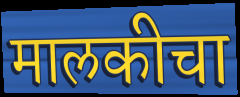
मालकीचा